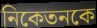
নিকেতনকে